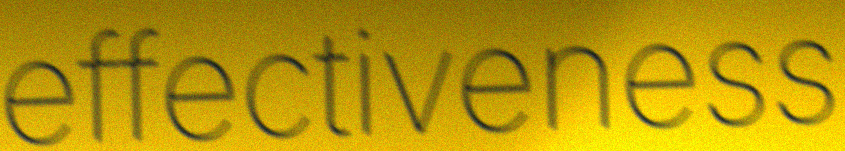
effectiveness